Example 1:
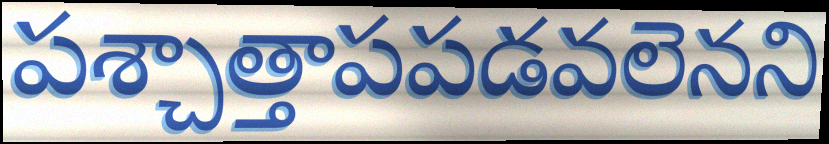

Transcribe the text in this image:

పశ్చాత్తాపపడవలెనని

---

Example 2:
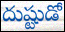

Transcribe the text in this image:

దుష్టుడో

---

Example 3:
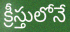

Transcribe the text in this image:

క్రీస్తులోనే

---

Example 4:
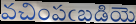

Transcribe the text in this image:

వచింపఁబడియె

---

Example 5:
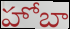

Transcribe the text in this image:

హోబా